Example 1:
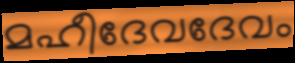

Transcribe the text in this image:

മഹീദേവദേവം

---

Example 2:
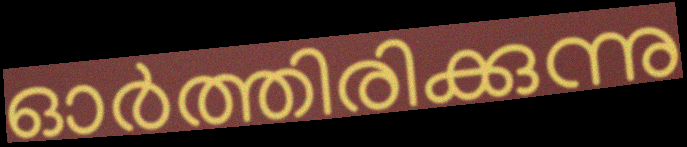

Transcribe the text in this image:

ഓർത്തിരിക്കുന്നു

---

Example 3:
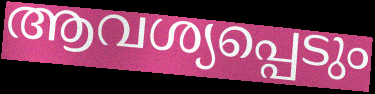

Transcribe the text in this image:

ആവശ്യപ്പെടും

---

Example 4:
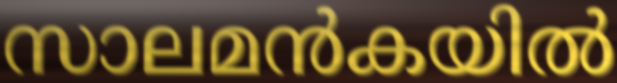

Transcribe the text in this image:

സാലമൻകയിൽ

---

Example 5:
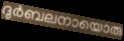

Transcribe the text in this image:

ദുർബലനായൊരു